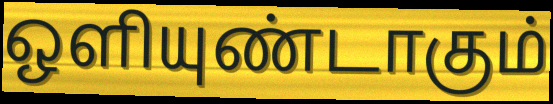
ஒளியுண்டாகும்